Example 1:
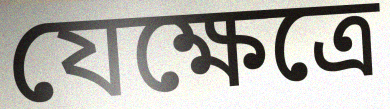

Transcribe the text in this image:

যেক্ষেত্রে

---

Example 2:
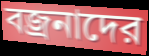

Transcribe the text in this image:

বজ্রনাদের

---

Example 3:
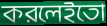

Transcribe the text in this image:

করলেইতো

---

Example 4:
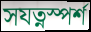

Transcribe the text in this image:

সযত্নস্পর্শ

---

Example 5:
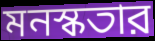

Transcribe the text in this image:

মনস্কতার